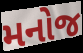
મનોજ